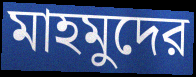
মাহমুদের